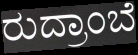
ರುದ್ರಾಂಬೆ